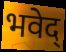
भवेद्